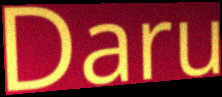
Daru